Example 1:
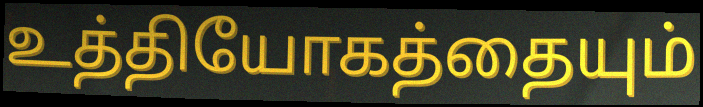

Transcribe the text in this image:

உத்தியோகத்தையும்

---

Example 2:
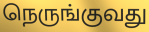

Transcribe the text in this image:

நெருங்குவது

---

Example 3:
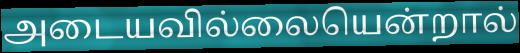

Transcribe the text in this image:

அடையவில்லையென்றால்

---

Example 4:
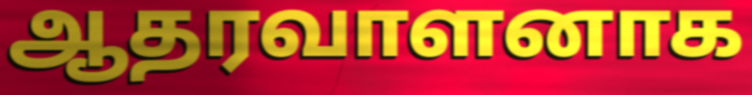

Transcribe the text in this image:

ஆதரவாளனாக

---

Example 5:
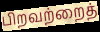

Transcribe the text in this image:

பிறவற்றைத்